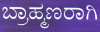
ಬ್ರಾಹ್ಮಣರಾಗಿ